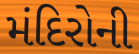
મંદિરોની